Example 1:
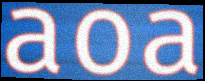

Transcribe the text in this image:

aoa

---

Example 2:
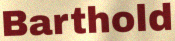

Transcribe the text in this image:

Barthold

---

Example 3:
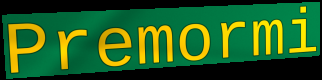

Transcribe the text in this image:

Premormi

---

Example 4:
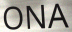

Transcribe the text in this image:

ONA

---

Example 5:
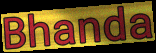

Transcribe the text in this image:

Bhanda